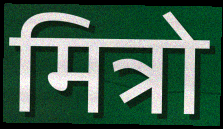
मित्रो